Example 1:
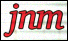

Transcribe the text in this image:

jnm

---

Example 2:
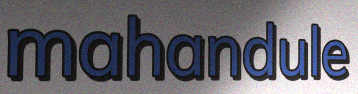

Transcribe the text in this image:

mahandule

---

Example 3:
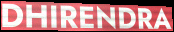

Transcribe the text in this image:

DHIRENDRA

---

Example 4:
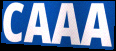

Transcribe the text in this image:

CAAA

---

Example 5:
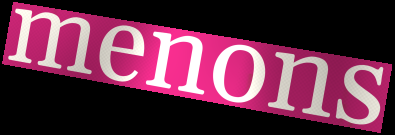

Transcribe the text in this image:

menons